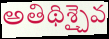
అతిథిశ్చైవ